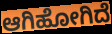
ಆಗಿಹೋಗಿದೆ